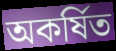
অকৰ্ষিত